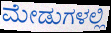
ಮೇಡುಗಳಲ್ಲಿ